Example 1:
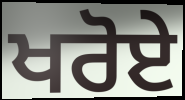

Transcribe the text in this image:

ਖਰੋਏ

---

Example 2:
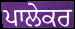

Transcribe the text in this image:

ਪਾਲੇਕਰ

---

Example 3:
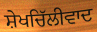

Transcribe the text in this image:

ਸ਼ੇਖਚਿੱਲੀਵਾਦ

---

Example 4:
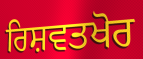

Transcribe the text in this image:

ਰਿਸ਼ਵਤਖੋਰ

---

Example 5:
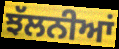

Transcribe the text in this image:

ਝੱਲਨੀਆਂ